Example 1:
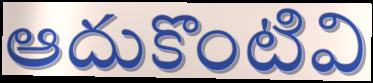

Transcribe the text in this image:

ఆదుకొంటివి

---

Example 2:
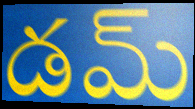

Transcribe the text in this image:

డమ్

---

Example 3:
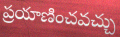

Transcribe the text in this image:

ప్రయాణించవచ్చు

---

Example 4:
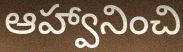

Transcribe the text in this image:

ఆహ్వానించి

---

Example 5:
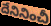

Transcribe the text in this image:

దేనినించీ